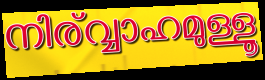
നിര്വ്വാഹമുള്ളൂ